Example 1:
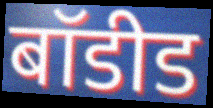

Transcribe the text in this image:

बॉडीड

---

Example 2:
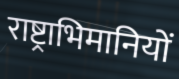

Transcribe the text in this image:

राष्ट्राभिमानियों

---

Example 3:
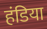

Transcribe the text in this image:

हंडिया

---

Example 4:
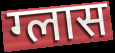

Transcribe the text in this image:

ग्लास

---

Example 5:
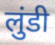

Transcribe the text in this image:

लुंडी